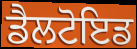
ਡੈਲਟੋਇਡ